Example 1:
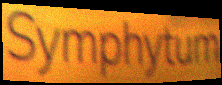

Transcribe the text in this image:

Symphytum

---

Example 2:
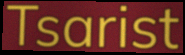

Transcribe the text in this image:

Tsarist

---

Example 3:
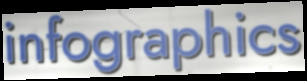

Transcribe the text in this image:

infographics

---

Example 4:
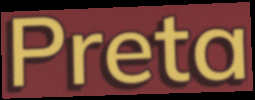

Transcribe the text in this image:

Preta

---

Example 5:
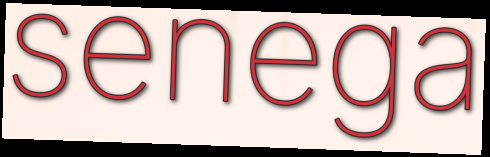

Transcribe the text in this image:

senega